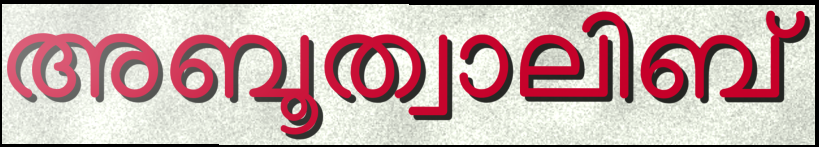
അബൂത്വാലിബ്